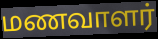
மணவாளர்